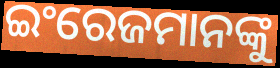
ଇଂରେଜମାନଙ୍କୁ